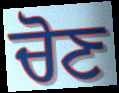
ਚੋਣ